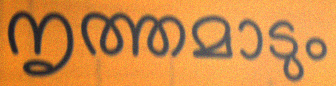
നൃത്തമാടും